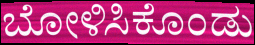
ಬೋಳಿಸಿಕೊಂಡು